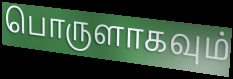
பொருளாகவும்